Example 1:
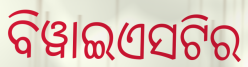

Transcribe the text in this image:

ବିୱାଇଏସଟିର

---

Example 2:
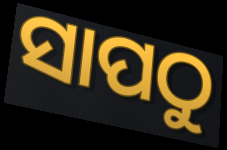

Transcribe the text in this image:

ସାପଠୁ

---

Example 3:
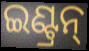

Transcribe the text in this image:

ଇଣ୍ଟ୍ରନ୍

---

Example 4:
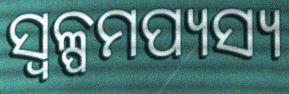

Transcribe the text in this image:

ସ୍ୱଳ୍ପମପ୍ୟସ୍ୟ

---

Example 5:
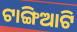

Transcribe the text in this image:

ଟାଙ୍ଗିଆଟି